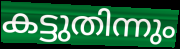
കട്ടുതിന്നും